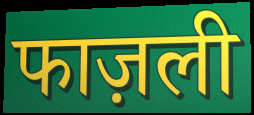
फाज़ली